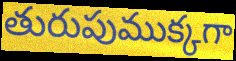
తురుపుముక్కగా